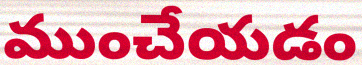
ముంచేయడం